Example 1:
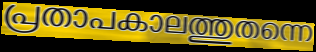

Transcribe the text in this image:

പ്രതാപകാലത്തുതന്നെ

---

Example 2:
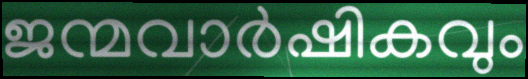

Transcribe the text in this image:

ജന്മവാർഷികവും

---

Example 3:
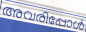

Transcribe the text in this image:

അവരിപ്പോൾ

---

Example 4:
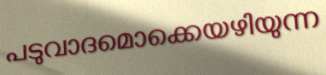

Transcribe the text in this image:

പടുവാദമൊക്കെയഴിയുന്ന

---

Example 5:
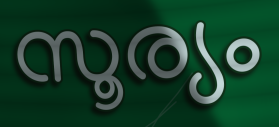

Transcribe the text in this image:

സൂര്യം